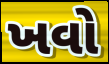
ખવો